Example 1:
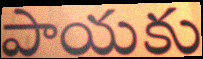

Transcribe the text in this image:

పాయకు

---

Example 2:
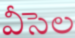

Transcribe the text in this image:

వీసెల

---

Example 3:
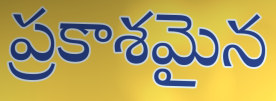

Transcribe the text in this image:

ప్రకాశమైన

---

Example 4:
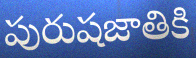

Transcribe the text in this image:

పురుషజాతికి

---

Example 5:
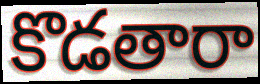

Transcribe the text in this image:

కొడతారా